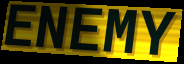
ENEMY